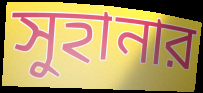
সুহানার